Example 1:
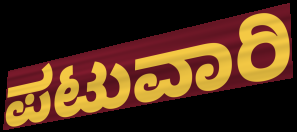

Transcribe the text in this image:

ಪಟುವಾರಿ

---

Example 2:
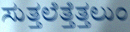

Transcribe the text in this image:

ಸುತ್ತಲೆತ್ತೆತ್ತಲುಂ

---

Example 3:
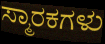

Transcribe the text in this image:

ಸ್ಮಾರಕಗಳು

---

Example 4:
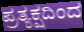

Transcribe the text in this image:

ಪ್ರತ್ಯಕ್ಷದಿಂದ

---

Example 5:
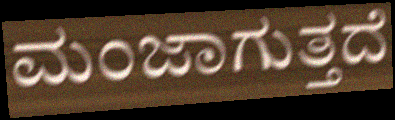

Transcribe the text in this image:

ಮಂಜಾಗುತ್ತದೆ